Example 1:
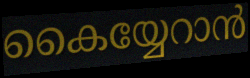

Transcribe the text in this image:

കൈയ്യേറാൻ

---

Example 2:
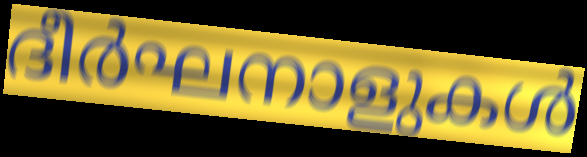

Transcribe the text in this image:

ദീർഘനാളുകൾ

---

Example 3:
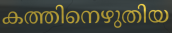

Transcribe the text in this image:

കത്തിനെഴുതിയ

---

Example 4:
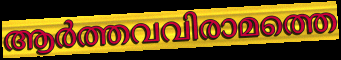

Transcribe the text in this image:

ആർത്തവവിരാമത്തെ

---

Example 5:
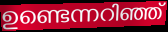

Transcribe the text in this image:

ഉണ്ടെന്നറിഞ്ഞ്